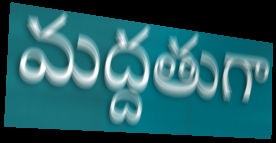
మద్దతుగా